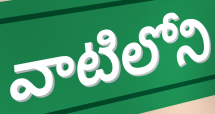
వాటిలోని